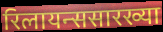
रिलायन्ससारख्या